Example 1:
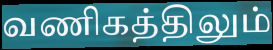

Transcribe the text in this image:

வணிகத்திலும்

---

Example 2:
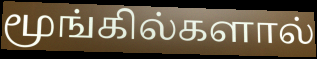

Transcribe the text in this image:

மூங்கில்களால்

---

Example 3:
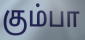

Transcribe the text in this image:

கும்பா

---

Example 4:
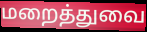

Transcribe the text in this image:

மறைத்துவை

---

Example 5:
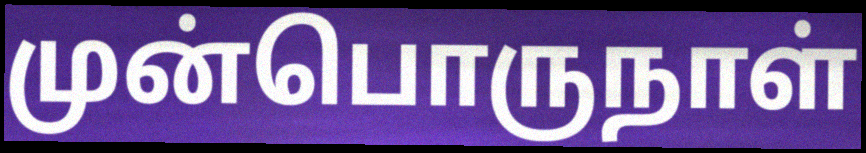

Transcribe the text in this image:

முன்பொருநாள்